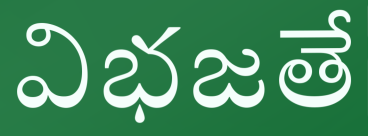
విభజతే